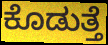
ಕೊಡುತ್ತೆ